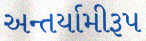
અન્તર્યામીરૂપ